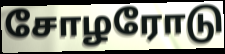
சோழரோடு